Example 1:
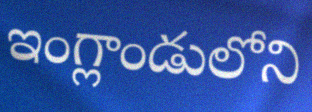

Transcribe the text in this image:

ఇంగ్లాండులోని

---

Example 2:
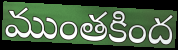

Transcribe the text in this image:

ముంతకింద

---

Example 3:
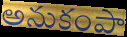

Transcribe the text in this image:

అనుకంపా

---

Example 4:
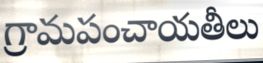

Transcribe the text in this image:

గ్రామపంచాయతీలు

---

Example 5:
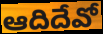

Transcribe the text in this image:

ఆదిదేవో